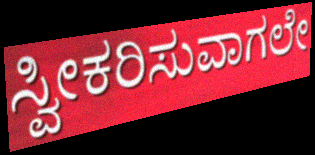
ಸ್ವೀಕರಿಸುವಾಗಲೇ